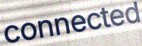
connected